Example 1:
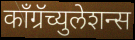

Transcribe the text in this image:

काँग्रॅच्युलेशन्स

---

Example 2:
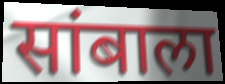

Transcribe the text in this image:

सांबाला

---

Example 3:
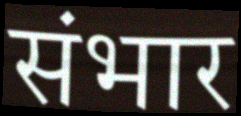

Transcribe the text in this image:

संभार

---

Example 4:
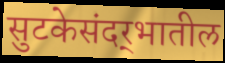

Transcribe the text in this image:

सुटकेसंदर्भातील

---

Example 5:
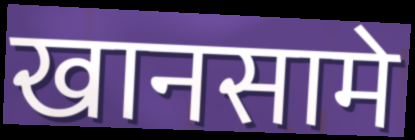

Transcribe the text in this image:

खानसामे